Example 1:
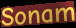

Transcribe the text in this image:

Sonam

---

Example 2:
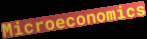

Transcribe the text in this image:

Microeconomics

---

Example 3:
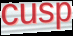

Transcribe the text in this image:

cusp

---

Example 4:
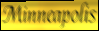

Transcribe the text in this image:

Minneapolis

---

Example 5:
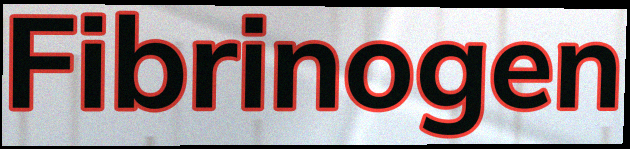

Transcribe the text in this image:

Fibrinogen